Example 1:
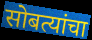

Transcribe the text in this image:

सोबत्यांचा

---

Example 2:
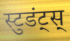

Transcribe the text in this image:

स्टुडंट्स्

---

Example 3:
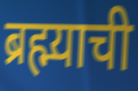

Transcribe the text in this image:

ब्रह्म्याची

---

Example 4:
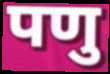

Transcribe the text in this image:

पणु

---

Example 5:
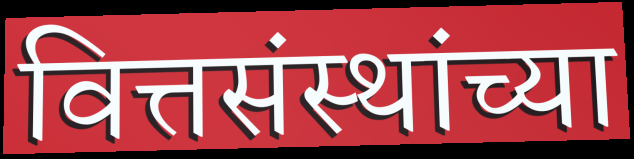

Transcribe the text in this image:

वित्तसंस्थांच्या